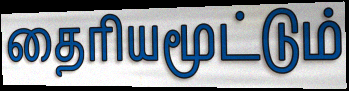
தைரியமூட்டும்